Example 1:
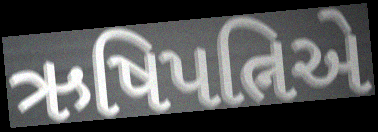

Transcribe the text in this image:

ઋષિપત્નિએ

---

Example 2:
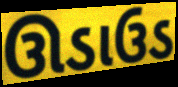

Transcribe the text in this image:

ઊડાઉડ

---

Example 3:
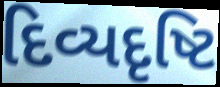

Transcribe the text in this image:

દિવ્યદૃષ્ટિ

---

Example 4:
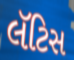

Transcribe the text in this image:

લૅટિસ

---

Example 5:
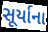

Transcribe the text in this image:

સૂર્યાના